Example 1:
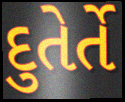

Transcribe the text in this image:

દુતેર્તે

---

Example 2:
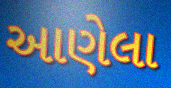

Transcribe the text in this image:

આણેલા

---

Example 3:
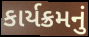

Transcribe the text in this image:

કાર્યક્રમનું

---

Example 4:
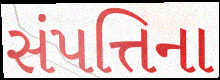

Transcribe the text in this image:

સંપત્તિના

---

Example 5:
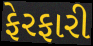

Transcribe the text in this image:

ફેરફારી